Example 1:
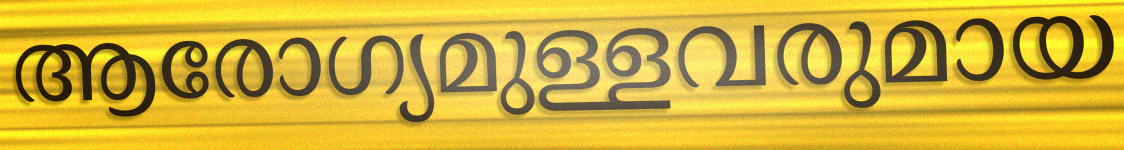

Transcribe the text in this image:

ആരോഗ്യമുള്ളവരുമായ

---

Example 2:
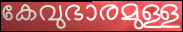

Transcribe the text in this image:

കേവുഭാരമുള്ള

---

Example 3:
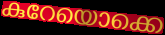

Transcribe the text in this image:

കുറേയൊക്കെ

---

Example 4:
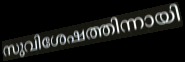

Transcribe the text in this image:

സുവിശേഷത്തിന്നായി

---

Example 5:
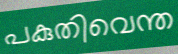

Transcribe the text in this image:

പകുതിവെന്ത